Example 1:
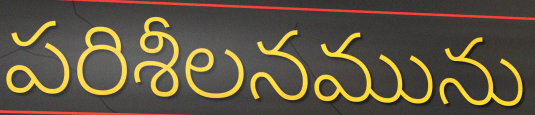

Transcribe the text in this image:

పరిశీలనమును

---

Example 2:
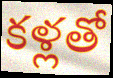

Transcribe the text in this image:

కళ్లతో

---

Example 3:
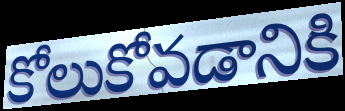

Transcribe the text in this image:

కోలుకోవడానికి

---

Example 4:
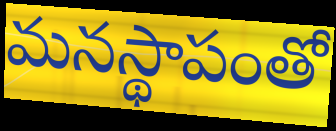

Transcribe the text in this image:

మనస్థాపంతో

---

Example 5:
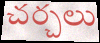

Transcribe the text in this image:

చర్చలు